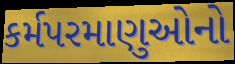
કર્મપરમાણુઓનો